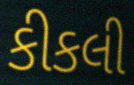
કીકલી